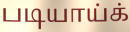
படியாய்க்